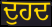
ਦੁਹਦ